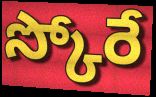
స్కోరే